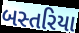
બસ્તરિયા